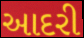
આદરી